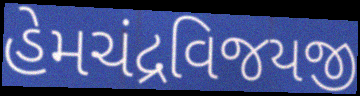
હેમચંદ્રવિજયજી